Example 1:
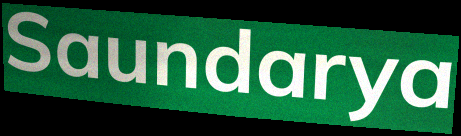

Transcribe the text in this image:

Saundarya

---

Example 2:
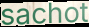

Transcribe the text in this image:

sachot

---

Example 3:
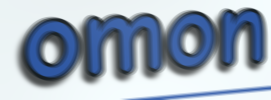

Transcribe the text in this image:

omon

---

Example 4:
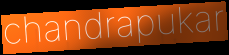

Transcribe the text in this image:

chandrapukar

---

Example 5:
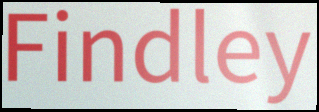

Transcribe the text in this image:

Findley